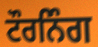
ਟੌਰਨਿੰਗ